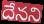
దేనని